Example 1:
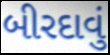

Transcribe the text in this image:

બીરદાવું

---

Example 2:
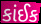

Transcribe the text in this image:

કાંઈક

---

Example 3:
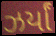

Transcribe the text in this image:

ઝર્યાં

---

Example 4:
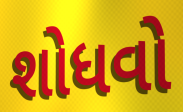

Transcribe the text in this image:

શોધવો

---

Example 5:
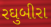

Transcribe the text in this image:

રઘુબીરા